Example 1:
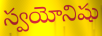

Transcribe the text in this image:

స్వయోనిషు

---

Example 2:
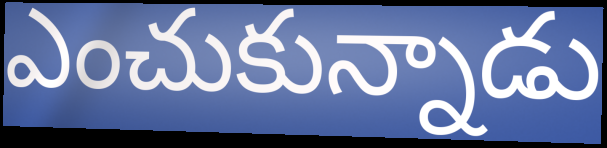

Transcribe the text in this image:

ఎంచుకున్నాడు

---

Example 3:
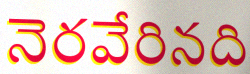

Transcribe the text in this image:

నెరవేరినది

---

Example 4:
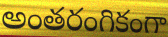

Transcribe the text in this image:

అంతరంగికంగా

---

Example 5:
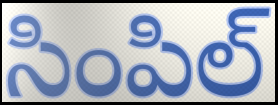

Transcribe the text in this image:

సింపిల్